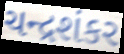
ચન્દ્રશંકર